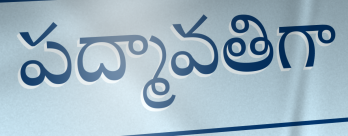
పద్మావతిగా